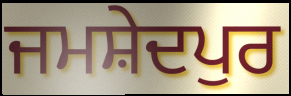
ਜਮਸ਼ੇਦਪੁਰ